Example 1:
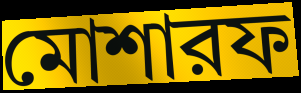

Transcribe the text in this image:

মোশারফ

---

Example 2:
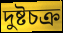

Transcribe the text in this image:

দুষ্টচক্র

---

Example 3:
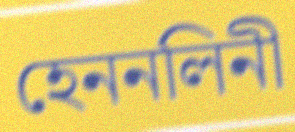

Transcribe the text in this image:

হেননলিনী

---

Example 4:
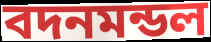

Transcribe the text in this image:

বদনমন্ডল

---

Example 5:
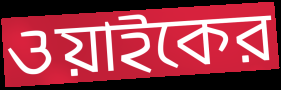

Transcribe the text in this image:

ওয়াইকের